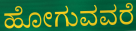
ಹೋಗುವವರೆ